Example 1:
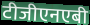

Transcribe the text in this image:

टीजीएनएबी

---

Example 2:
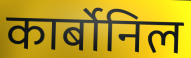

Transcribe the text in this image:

कार्बोनिल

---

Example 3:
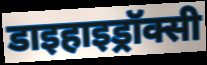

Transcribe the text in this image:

डाइहाइड्रॉक्सी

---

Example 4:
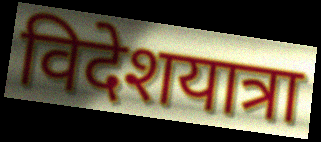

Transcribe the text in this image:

विदेशयात्रा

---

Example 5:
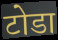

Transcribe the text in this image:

टोडा